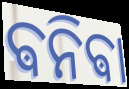
ଵନିଵା